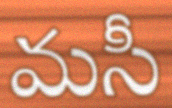
మసీ